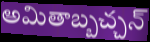
అమితాబ్బచ్చన్